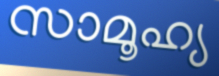
സാമൂഹ്യ